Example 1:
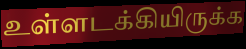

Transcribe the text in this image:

உள்ளடக்கியிருக்க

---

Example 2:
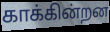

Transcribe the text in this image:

காக்கின்றன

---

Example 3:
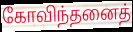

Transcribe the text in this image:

கோவிந்தனைத்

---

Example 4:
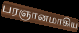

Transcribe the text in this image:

பரஞானமாகிய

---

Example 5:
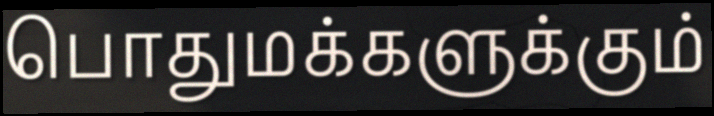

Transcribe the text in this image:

பொதுமக்களுக்கும்